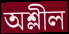
অশ্লীল